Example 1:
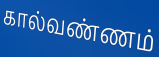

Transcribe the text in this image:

கால்வண்ணம்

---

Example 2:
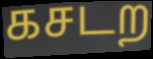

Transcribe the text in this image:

கசடற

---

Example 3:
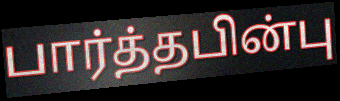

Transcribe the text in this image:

பார்த்தபின்பு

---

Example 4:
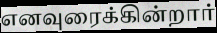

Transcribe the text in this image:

எனவுரைக்கின்றார்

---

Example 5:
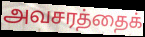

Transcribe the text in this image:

அவசரத்தைக்